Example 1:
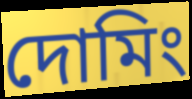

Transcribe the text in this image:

দোমিং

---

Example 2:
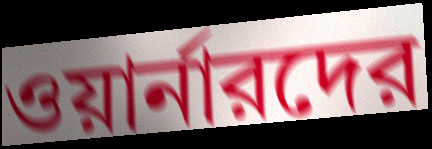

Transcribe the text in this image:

ওয়ার্নারদের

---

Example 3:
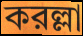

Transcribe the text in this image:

করল্লা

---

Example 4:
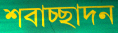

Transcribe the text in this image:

শবাচ্ছাদন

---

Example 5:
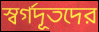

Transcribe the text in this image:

স্বর্গদূতদের